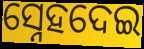
ସ୍ନେହଦେଇ